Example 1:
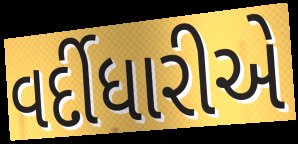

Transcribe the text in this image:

વર્દીધારીએ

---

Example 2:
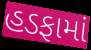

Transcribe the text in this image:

હડફામાં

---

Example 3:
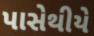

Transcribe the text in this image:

પાસેથીયે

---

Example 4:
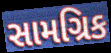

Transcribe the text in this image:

સામગ્રિક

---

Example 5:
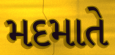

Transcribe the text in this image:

મદમાતે